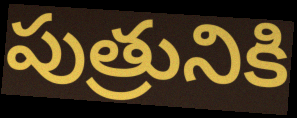
పుత్రునికి